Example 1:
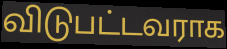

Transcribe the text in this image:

விடுபட்டவராக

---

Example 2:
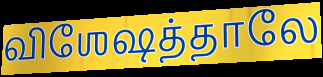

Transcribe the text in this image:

விஶேஷத்தாலே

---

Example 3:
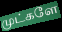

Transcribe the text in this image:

முட்களே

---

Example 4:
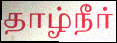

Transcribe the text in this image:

தாழ்நீர்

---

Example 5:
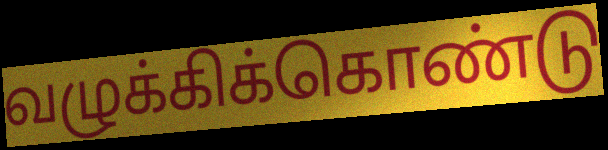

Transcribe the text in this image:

வழுக்கிக்கொண்டு